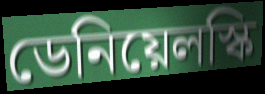
ডেনিয়েলস্কি